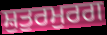
ਸ਼ੁਤੁਰਮੁਰਗ